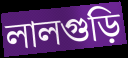
লালগুড়ি